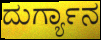
ದುರ್ಗ್ಯಾನ